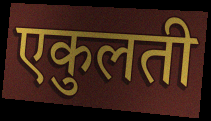
एकुलती